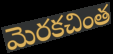
మెరకచింత